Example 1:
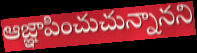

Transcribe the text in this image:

ఆజ్ఞాపించుచున్నానని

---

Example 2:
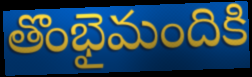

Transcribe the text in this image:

తొంభైమందికి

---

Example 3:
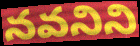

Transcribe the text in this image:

నవనిని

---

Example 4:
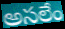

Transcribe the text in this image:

అసలేం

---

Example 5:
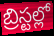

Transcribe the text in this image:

బ్రిస్టల్లో